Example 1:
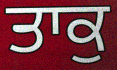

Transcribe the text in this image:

ਤਾਕੁ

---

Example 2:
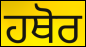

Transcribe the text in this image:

ਹਥੋਰ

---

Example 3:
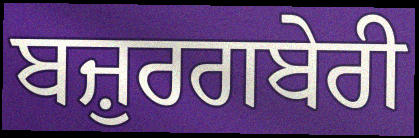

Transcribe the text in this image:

ਬਜ਼ੁਰਗਬੇਰੀ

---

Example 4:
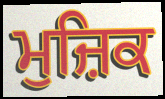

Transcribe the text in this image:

ਮੁਜ਼ਿਕ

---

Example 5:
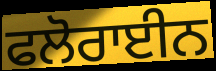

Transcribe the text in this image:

ਫਲੋਰਾਈਨ